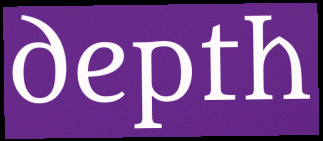
depth